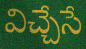
విచ్చేసే